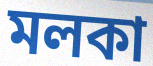
মলকা